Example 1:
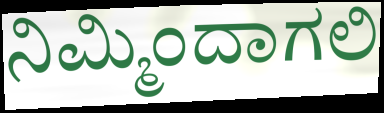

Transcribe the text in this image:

ನಿಮ್ಮಿಂದಾಗಲಿ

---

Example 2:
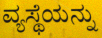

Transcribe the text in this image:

ವ್ಯಸ್ಥೆಯನ್ನು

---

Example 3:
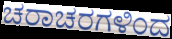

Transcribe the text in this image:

ಚರಾಚರಗಳಿಂದ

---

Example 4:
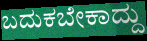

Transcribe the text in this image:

ಬದುಕಬೇಕಾದ್ದು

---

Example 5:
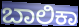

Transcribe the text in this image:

ಬಾಲಿಕಾ